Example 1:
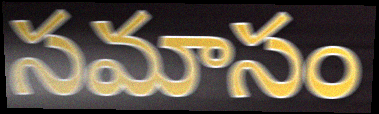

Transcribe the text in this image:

సమాసం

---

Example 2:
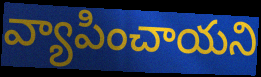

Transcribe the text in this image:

వ్యాపించాయని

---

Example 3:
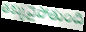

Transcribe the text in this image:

తక్కువైపోతుంది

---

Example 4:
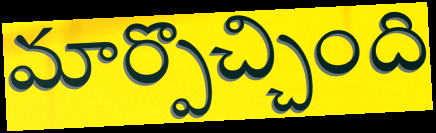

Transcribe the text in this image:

మార్పొచ్చింది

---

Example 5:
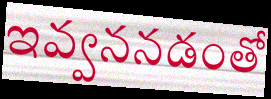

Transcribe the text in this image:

ఇవ్వననడంతో